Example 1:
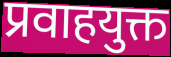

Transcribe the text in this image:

प्रवाहयुक्त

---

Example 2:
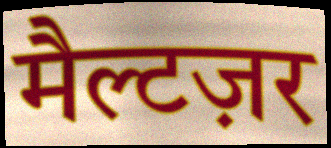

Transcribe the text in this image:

मैल्टज़र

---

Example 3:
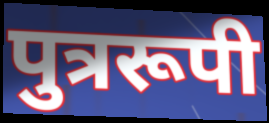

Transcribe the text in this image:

पुत्ररूपी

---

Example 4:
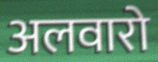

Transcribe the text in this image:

अलवारो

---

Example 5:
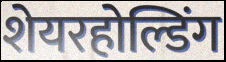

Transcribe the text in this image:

शेयरहोल्डिंग